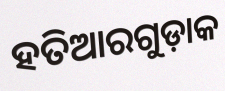
ହତିଆରଗୁଡ଼ାକ